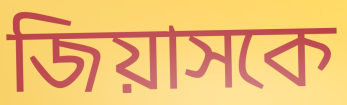
জিয়াসকে